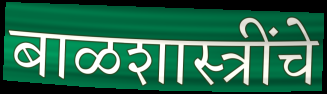
बाळशास्त्रींचे